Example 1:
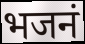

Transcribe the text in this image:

भजनं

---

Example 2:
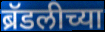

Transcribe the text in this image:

ब्रॅडलीच्या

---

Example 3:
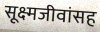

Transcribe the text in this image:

सूक्ष्मजीवांसह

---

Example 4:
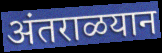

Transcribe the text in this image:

अंतराळयान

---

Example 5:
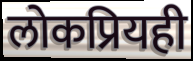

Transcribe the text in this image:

लोकप्रियही